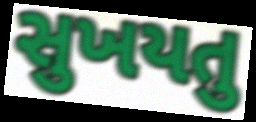
સુખયતુ